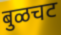
बुळचट